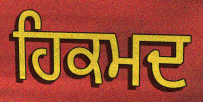
ਹਿਕਮਦ